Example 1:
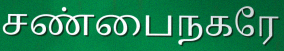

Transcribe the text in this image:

சண்பைநகரே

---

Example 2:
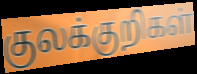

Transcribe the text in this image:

குலக்குறிகள்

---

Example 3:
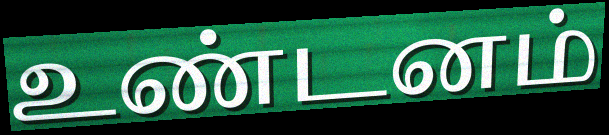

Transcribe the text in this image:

உண்டனம்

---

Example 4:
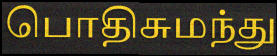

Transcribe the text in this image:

பொதிசுமந்து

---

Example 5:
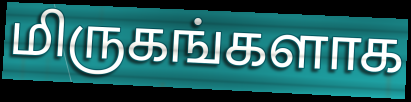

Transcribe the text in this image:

மிருகங்களாக